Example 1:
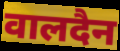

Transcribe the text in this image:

वालदैन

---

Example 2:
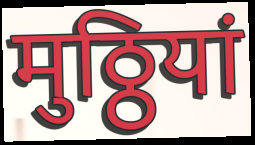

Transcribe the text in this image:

मुठ्ठियां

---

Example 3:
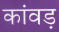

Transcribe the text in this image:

कांवड़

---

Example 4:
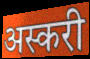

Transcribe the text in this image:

अस्करी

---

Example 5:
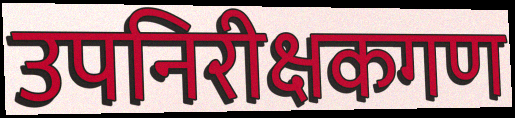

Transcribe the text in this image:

उपनिरीक्षकगण